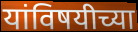
यांविषयीच्या